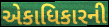
એકાધિકારની